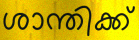
ശാന്തിക്ക്